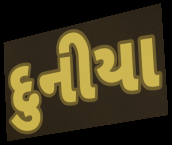
દુનીયા